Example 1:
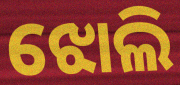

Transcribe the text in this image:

ଝୋଲି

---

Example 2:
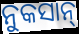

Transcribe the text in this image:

ନୁକସାନ୍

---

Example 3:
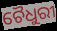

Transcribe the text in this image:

ଚୈଧୁରୀ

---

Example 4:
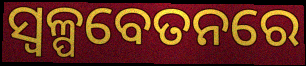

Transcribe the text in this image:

ସ୍ୱଳ୍ପବେତନରେ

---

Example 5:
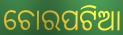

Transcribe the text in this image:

ଚୋରପଟିଆ